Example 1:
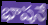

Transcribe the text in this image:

భాషనే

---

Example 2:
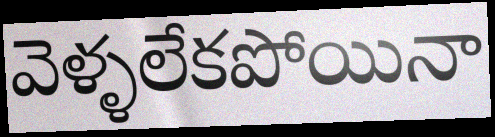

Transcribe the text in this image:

వెళ్ళలేకపోయినా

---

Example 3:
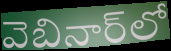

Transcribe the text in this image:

వెబినార్‌లో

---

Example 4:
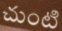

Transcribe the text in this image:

చుంటి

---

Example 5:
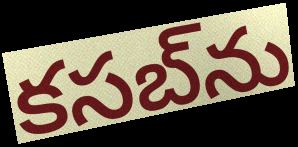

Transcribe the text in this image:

కసబ్‌ను